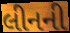
લીનની